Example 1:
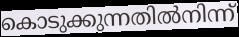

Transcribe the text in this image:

കൊടുക്കുന്നതിൽനിന്ന്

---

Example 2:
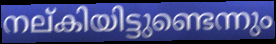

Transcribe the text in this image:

നല്കിയിട്ടുണ്ടെന്നും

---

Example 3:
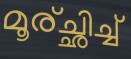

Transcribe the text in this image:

മൂര്ച്ഛിച്ച്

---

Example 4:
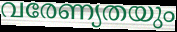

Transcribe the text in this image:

വരേണ്യതയും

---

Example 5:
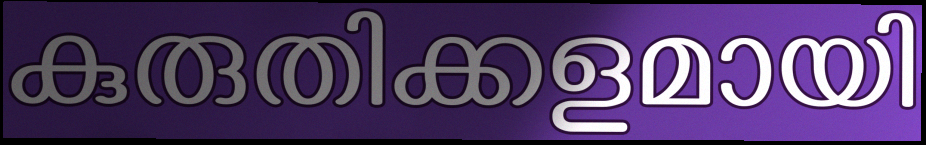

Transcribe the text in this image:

കുരുതിക്കളമായി